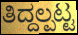
ತಿದ್ದಲ್ಪಟ್ಟ